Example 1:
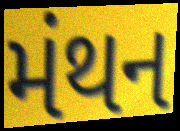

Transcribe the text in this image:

મંથન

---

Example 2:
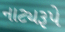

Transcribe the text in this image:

નાટ્યરૂપે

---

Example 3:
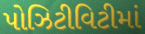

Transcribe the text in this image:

પોઝિટીવિટીમાં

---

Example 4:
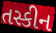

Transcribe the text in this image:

તસ્કીન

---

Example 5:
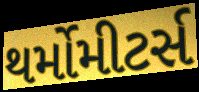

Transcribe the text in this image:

થર્મોમીટર્સ